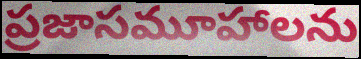
ప్రజాసమూహాలను